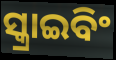
ସ୍କ୍ରାଇବିଂ